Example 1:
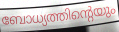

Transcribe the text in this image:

ബോധ്യത്തിന്റെയും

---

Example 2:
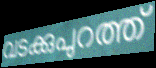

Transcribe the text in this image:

വടക്കുപുറത്ത്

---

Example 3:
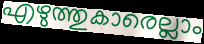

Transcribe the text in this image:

എഴുത്തുകാരെല്ലാം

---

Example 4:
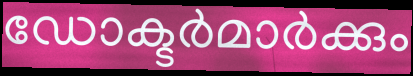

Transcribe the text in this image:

ഡോക്ടർമാർക്കും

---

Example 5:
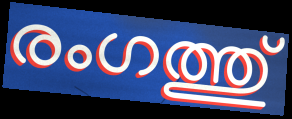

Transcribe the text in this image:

രംഗത്തു്